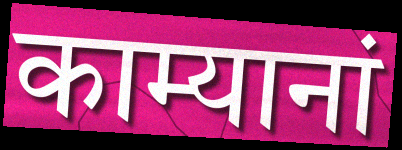
काम्यानां